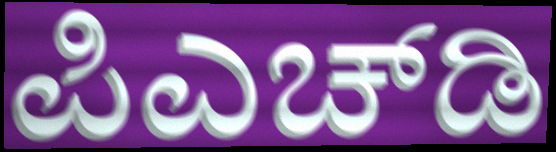
ಪಿಎಚ್‌ಡಿ